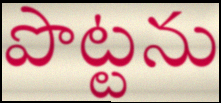
పొట్టను